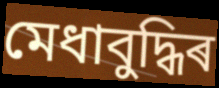
মেধাবুদ্ধিৰ